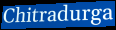
Chitradurga